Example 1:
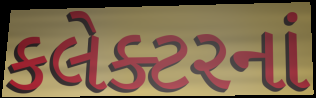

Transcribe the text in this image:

કલેક્ટરનાં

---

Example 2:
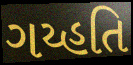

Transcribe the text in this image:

ગય્હતિ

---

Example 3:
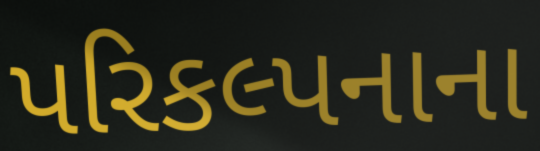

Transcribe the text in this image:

પરિકલ્પનાના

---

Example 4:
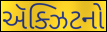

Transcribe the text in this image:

ઍક્ઝિટનો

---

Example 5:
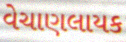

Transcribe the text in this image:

વેચાણલાયક